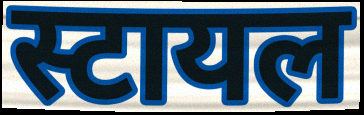
स्टायल